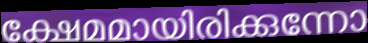
ക്ഷേമമായിരിക്കുന്നോ